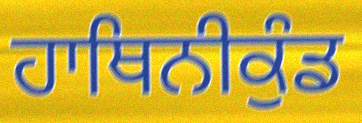
ਹਾਥਿਨੀਕੁੰਡ